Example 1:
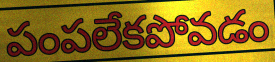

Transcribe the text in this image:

పంపలేకపోవడం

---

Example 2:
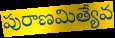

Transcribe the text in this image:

పురాణమిత్యేవ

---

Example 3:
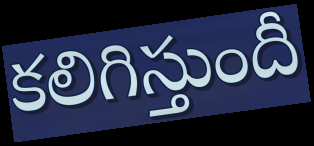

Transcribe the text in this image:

కలిగిస్తుందీ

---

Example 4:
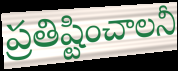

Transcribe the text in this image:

ప్రతిష్టించాలనీ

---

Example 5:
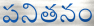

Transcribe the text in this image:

పనితనం